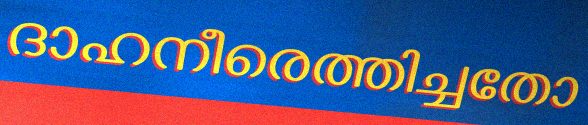
ദാഹനീരെത്തിച്ചതോ